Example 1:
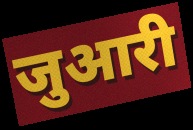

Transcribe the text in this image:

जुआरी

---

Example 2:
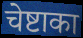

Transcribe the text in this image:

चेष्टाका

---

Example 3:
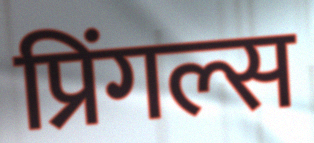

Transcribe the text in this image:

प्रिंगल्स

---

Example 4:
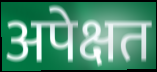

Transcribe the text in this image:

अपेक्षत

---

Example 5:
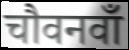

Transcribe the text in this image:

चौवनवाँ